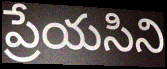
ప్రేయసిని